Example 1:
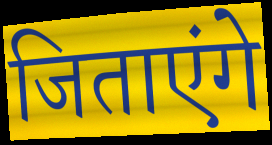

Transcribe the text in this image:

जिताएंगे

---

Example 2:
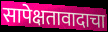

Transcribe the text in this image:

सापेक्षतावादाचा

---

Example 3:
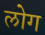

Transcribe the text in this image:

लोग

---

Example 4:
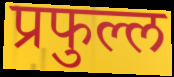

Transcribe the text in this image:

प्रफुल्ल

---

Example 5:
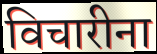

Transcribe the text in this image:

विचारीना